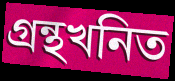
গ্ৰন্থখনিত